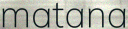
matana